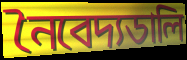
নৈবেদ্যডালি